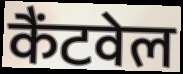
कैंटवेल